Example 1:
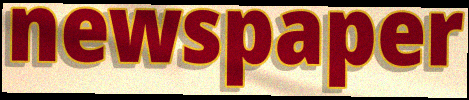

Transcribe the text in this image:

newspaper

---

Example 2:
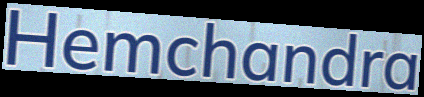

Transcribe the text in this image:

Hemchandra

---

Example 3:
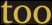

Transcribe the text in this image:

too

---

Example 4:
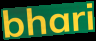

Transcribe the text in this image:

bhari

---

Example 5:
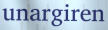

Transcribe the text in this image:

unargiren